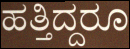
ಹತ್ತಿದ್ದರೂ